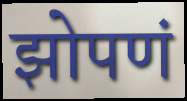
झोपणं